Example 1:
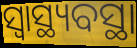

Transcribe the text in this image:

ସ୍ଵାସ୍ଥ୍ୟବସ୍ଥା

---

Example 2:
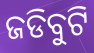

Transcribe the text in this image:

ଜଡିବୁଟି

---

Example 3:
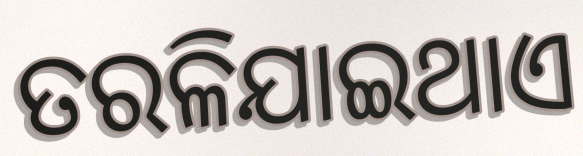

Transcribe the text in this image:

ତରଳିଯାଇଥାଏ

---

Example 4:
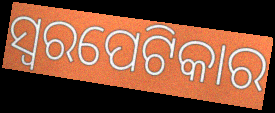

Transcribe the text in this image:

ସ୍ଵରପେଟିକାର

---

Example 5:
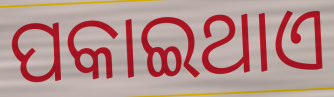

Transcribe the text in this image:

ପକାଇଥାଏ